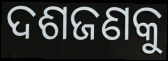
ଦଶଜଣକୁ